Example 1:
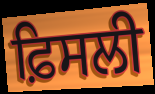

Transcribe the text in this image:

ਫ਼ਿਸਲੀ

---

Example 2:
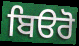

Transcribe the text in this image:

ਬਿੳਰੋ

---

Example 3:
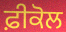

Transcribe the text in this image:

ਫ਼ੀਕੋਲ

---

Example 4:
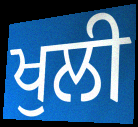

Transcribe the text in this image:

ਖੁਲੀ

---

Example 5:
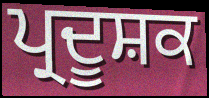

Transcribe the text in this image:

ਪ੍ਰਦੂਸ਼ਕ